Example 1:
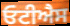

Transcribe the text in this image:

ਓਟੀਐਸ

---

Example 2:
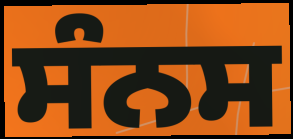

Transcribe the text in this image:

ਸੰਨਸ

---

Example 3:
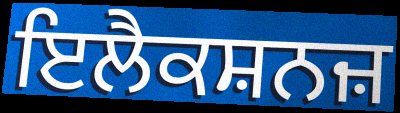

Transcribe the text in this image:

ਇਲੈਕਸ਼ਨਜ਼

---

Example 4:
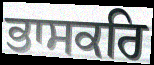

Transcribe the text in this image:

ਭਾਸਕਰਿ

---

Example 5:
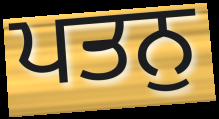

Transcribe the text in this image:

ਪਤਨੁ